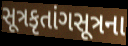
સૂત્રકૃતાંગસૂત્રના